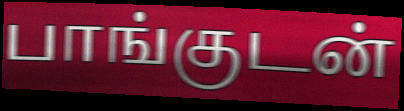
பாங்குடன்